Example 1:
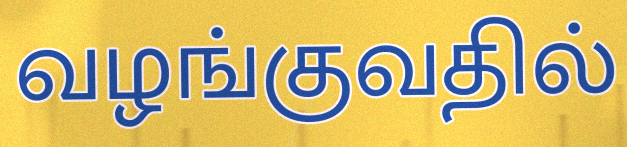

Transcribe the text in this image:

வழங்குவதில்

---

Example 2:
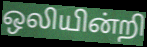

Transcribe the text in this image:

ஒலியின்றி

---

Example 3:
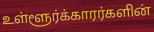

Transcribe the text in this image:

உள்ளூர்க்காரர்களின்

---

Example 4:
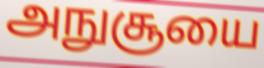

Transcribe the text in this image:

அநுசூயை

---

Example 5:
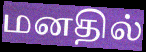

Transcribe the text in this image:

மனதில்